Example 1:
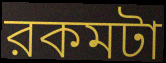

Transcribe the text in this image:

রকমটা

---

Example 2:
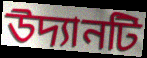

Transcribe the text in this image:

উদ্যানটি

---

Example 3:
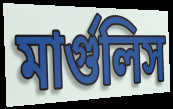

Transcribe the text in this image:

মার্গুলিস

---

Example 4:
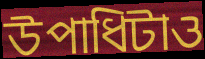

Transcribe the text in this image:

উপাধিটাও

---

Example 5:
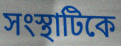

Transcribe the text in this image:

সংস্থাটিকে